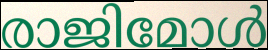
രാജിമോൾ